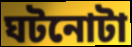
ঘটনোটা